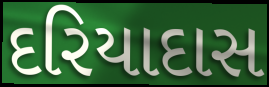
દરિયાદાસ